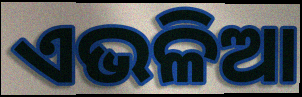
ଏଭଳିଆ